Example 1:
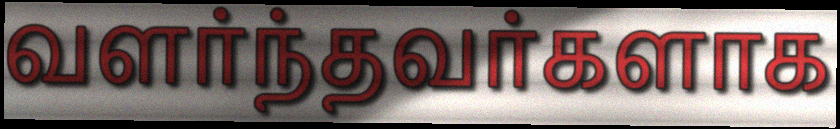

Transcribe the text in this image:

வளர்ந்தவர்களாக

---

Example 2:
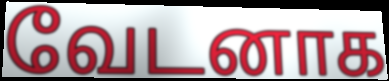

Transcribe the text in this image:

வேடனாக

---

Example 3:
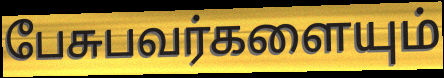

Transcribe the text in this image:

பேசுபவர்களையும்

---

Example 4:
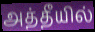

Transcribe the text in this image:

அத்தீயில்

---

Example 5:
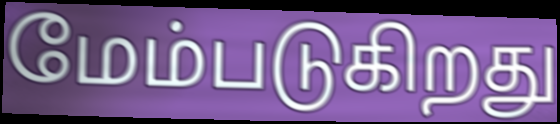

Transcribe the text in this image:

மேம்படுகிறது